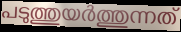
പടുത്തുയർത്തുന്നത്